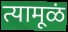
त्यामूळं